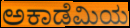
ಅಕಾಡೆಮಿಯ